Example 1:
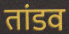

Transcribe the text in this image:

तांडव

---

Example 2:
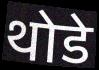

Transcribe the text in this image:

थोडे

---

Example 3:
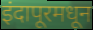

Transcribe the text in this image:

इंदापूरमधून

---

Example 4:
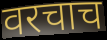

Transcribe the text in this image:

वरचाच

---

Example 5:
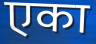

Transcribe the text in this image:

एका